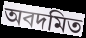
অবদমিত